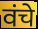
वंचे